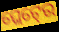
ପ୍ଲେଟ୍‍ରେ